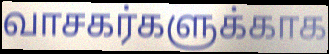
வாசகர்களுக்காக